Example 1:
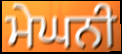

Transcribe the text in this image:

ਮੇਘਨੀ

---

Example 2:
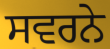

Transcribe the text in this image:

ਸਵਰਨੇ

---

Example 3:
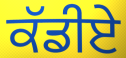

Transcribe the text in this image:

ਕੱਡੀਏ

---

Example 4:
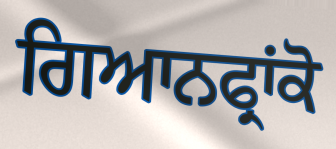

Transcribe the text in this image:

ਗਿਆਨਫ੍ਰਾਂਕੋ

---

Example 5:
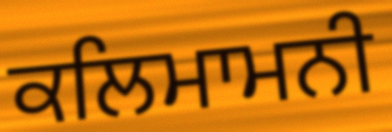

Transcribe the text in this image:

ਕਲਿਮਾਮਨੀ